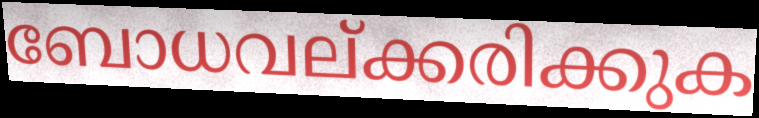
ബോധവല്ക്കരിക്കുക